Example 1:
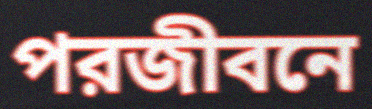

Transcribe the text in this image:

পরজীবনে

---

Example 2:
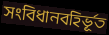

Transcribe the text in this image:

সংবিধানবহির্ভূত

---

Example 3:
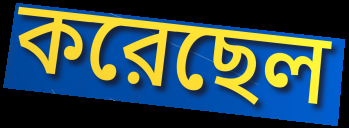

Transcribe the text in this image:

করেছেল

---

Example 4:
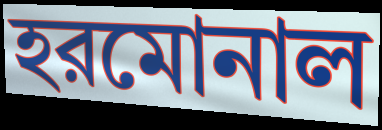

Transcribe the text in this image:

হরমোনাল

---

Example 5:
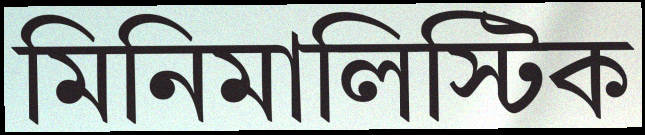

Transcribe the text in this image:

মিনিমালিস্টিক